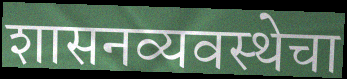
शासनव्यवस्थेचा